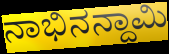
ನಾಭಿನನ್ದಾಮಿ